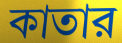
কাতার